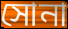
সোনা